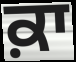
ਕ਼ਾ